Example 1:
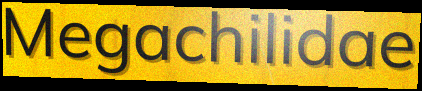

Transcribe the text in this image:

Megachilidae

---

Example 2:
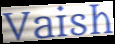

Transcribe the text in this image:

Vaish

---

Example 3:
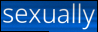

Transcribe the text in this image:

sexually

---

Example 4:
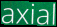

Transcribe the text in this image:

axial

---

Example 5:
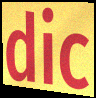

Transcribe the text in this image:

dic